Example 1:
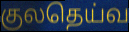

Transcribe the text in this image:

குலதெய்வ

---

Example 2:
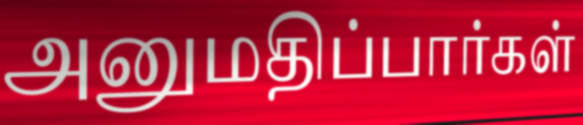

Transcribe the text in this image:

அனுமதிப்பார்கள்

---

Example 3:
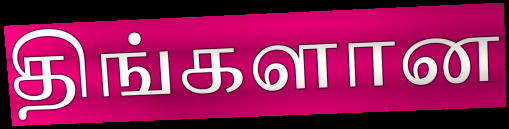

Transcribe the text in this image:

திங்களான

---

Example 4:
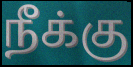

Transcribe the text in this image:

நீக்கு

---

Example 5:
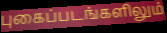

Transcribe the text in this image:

புகைப்படங்களிலும்